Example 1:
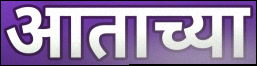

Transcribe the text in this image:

आताच्या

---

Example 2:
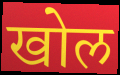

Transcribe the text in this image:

खोल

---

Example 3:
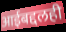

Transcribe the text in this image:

आईबद्दलही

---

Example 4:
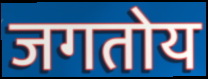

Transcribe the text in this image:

जगतोय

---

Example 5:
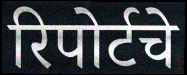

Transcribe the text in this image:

रिपोर्टचे